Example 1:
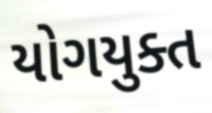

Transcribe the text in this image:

યોગયુક્ત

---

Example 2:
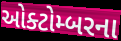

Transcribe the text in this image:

ઓક્ટોમ્બરના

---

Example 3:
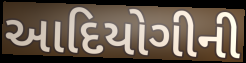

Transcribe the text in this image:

આદિયોગીની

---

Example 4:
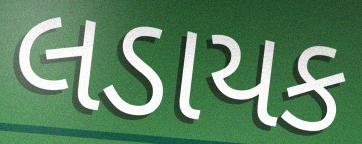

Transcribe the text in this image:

લડાયક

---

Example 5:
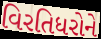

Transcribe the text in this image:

વિરતિધરોને